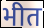
भीत